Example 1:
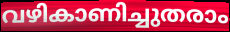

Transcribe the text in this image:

വഴികാണിച്ചുതരാം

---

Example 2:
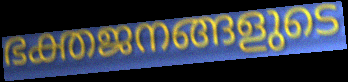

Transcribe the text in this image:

ഭക്തജനങ്ങളുടെ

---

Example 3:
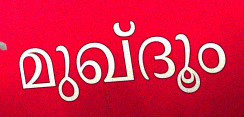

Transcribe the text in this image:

മുഖ്ദൂം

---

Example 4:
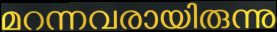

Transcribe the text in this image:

മറന്നവരായിരുന്നു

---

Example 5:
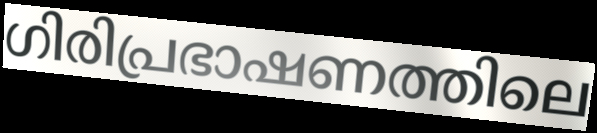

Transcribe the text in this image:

ഗിരിപ്രഭാഷണത്തിലെ